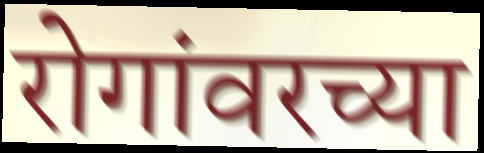
रोगांवरच्या